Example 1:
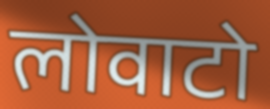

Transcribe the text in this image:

लोवाटो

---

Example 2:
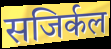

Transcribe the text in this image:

सजिर्कल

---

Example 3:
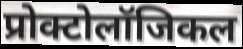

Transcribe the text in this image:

प्रोक्टोलॉजिकल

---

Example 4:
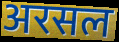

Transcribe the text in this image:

अरसल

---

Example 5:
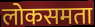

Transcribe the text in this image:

लोकसमता